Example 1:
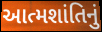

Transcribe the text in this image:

આત્મશાંતિનું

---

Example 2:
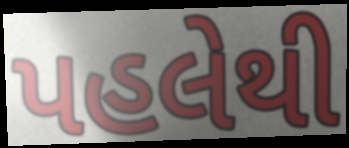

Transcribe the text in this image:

પહલેથી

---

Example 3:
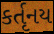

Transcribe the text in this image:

કર્તૃનય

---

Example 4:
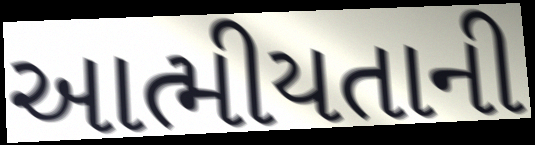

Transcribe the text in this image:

આત્મીયતાની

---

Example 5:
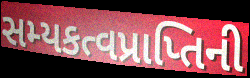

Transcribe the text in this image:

સમ્યકત્વપ્રાપ્તિની